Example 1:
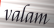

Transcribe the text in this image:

valam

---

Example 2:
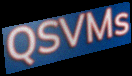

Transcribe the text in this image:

QSVMs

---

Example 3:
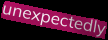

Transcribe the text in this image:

unexpectedly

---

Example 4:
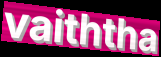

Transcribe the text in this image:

vaiththa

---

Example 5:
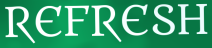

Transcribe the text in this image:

REFRESH